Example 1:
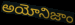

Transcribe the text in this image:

అయోనిజాం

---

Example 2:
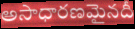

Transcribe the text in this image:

అసాధారణమైనదీ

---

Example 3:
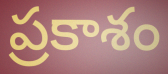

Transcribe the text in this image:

ప్రకాశం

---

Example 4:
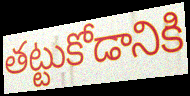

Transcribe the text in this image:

తట్టుకోడానికి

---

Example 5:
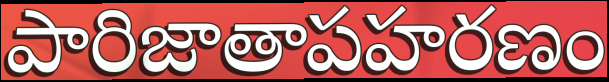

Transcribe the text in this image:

పారిజాతాపహరణం